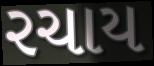
રચાય